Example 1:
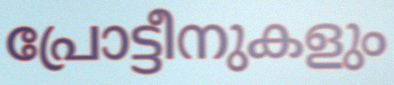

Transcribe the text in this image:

പ്രോട്ടീനുകളും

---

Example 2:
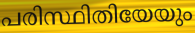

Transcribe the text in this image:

പരിസ്ഥിതിയേയും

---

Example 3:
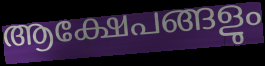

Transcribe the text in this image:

ആക്ഷേപങ്ങളും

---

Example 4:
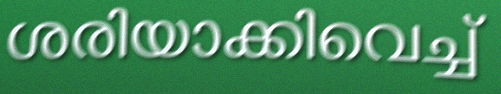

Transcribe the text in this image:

ശരിയാക്കിവെച്ച്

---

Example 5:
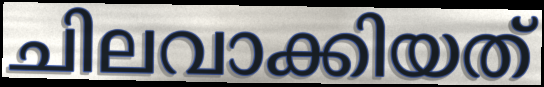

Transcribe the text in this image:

ചിലവാക്കിയത്